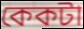
কেকটা